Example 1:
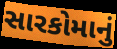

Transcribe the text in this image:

સારકોમાનું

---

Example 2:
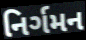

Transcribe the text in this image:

નિર્ગમન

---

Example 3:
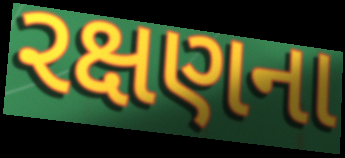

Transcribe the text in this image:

રક્ષણના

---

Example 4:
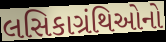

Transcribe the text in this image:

લસિકાગ્રંથિઓનો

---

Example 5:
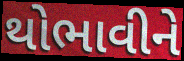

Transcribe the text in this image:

થોભાવીને